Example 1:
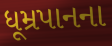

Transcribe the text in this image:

ધૂમ્રપાનના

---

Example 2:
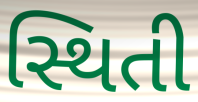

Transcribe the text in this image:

સ્થિતી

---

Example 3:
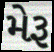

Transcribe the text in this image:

મેરૂ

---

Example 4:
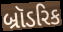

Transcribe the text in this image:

બ્રૉડરિક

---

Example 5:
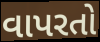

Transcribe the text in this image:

વાપરતો